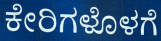
ಕೇರಿಗಳೊಳಗೆ